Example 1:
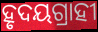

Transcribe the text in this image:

ହୃଦୟଗ୍ରାହୀ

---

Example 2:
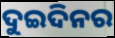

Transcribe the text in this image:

ଦୁଇଦିନର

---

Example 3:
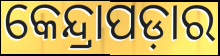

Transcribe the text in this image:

କେନ୍ଦ୍ରାପଡ଼ାର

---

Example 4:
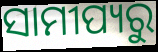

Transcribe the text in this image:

ସାମୀପ୍ୟରୁ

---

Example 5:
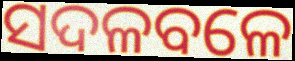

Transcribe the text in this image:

ସଦଳବଳେ